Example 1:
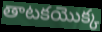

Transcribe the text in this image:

తాటకయొక్క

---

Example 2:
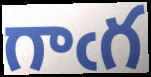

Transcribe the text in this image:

గాఁగ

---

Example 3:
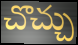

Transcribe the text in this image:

చొచ్చు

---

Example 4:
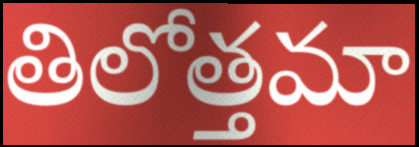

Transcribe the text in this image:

తిలోత్తమా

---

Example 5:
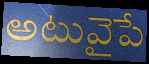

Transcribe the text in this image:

అటువైపే